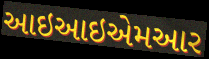
આઇઆઇએમઆર